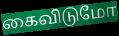
கைவிடுமோ